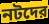
নটদের